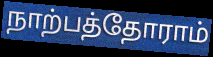
நாற்பத்தோராம்